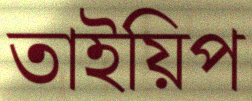
তাইয়িপ